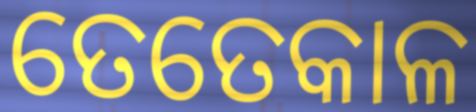
ତେତେକାଳ